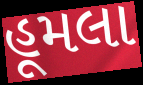
હૂમલા